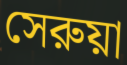
সেরুয়া